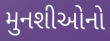
મુનશીઓનો